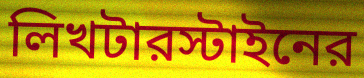
লিখটারস্টাইনের